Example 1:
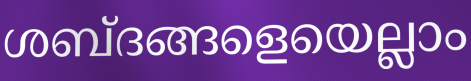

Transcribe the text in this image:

ശബ്ദങ്ങളെയെല്ലാം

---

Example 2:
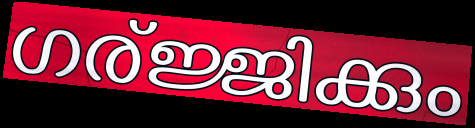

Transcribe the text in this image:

ഗര്ജ്ജിക്കും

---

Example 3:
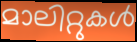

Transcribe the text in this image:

മാലിറ്റുകൾ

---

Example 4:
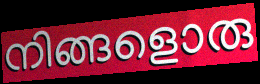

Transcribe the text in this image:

നിങ്ങളൊരു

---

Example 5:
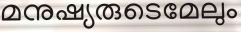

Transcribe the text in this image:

മനുഷ്യരുടെമേലും